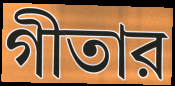
গীতার